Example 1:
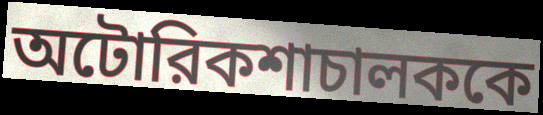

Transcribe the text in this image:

অটোরিকশাচালককে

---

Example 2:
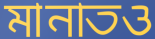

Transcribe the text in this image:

মানাতও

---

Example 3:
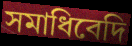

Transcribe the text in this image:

সমাধিবেদি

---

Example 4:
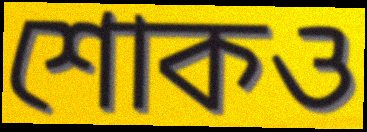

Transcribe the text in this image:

শোকও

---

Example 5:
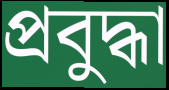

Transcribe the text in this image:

প্রবুদ্ধা